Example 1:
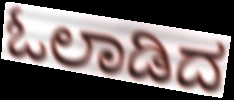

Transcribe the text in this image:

ಓಲಾಡಿದ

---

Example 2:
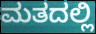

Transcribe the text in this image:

ಮತದಲ್ಲಿ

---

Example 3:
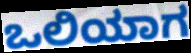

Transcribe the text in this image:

ಒಲಿಯಾಗ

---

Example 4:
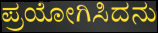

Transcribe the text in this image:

ಪ್ರಯೋಗಿಸಿದನು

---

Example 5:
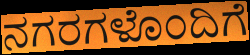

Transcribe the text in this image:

ನಗರಗಳೊಂದಿಗೆ